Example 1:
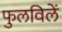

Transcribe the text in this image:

फुलविलें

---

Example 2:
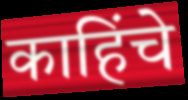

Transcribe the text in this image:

काहिंचे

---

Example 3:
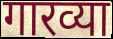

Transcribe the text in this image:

गारव्या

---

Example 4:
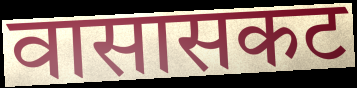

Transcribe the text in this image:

वासासकट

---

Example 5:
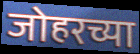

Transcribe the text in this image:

जोहरच्या